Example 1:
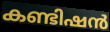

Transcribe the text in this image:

കണ്ടിഷൻ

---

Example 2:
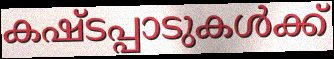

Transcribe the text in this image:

കഷ്ടപ്പാടുകൾക്ക്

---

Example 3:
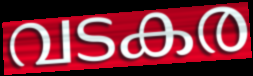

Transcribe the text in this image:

വടകര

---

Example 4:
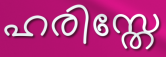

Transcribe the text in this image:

ഹരിസ്തേ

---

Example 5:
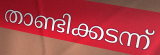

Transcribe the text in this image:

താണ്ടിക്കടന്ന്